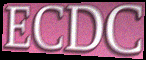
ECDC